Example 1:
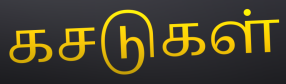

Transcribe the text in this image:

கசடுகள்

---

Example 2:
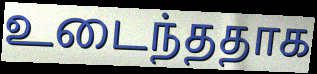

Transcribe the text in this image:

உடைந்ததாக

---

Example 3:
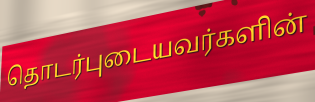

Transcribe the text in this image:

தொடர்புடையவர்களின்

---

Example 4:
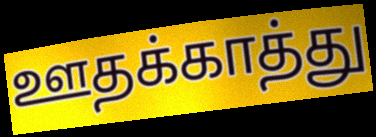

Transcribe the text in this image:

ஊதக்காத்து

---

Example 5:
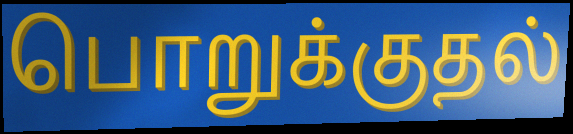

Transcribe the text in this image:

பொறுக்குதல்